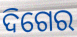
ଦିଗେର